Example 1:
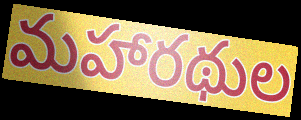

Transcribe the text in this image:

మహారథుల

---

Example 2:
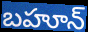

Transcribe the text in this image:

బహూన్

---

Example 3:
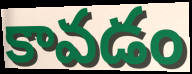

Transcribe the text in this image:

కావడం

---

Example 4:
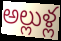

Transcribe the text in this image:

అల్లుళ్ల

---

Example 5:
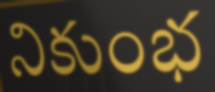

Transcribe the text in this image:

నికుంభ